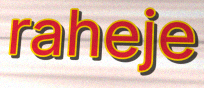
raheje